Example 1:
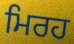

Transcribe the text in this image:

ਮਿਰਹ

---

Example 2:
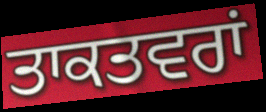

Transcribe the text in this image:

ਤਾਕਤਵਰਾਂ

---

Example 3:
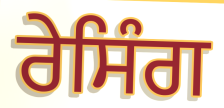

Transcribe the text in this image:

ਰੇਸਿੰਗ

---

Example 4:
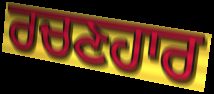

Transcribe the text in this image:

ਰਚਣਹਾਰ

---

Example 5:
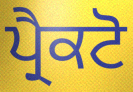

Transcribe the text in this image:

ਪ੍ਰੈਕਟੋ